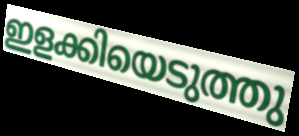
ഇളക്കിയെടുത്തു